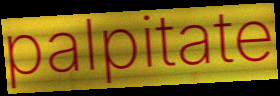
palpitate